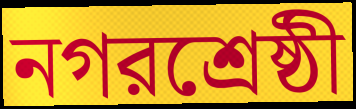
নগরশ্রেষ্ঠী